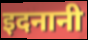
इदनानी